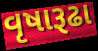
વૃષારૂઢા